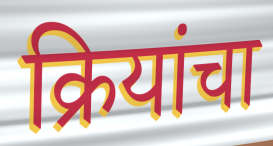
क्रियांचा